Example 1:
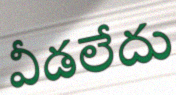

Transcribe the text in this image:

వీడలేదు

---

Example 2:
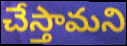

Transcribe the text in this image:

చేస్తామని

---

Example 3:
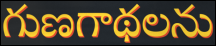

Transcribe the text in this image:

గుణగాథలను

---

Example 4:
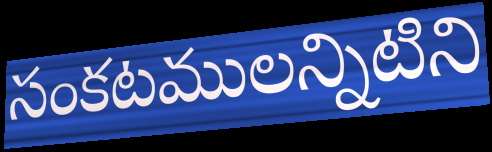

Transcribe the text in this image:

సంకటములన్నిటిని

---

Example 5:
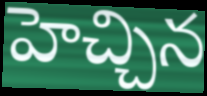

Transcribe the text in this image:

హెచ్చిన